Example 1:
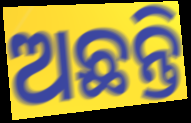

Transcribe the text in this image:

ଅଛନ୍ତି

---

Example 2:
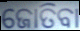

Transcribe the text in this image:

ଜୋତିବା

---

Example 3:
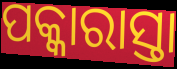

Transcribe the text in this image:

ପକ୍କାରାସ୍ତା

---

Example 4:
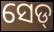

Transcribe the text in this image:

ସେଡ୍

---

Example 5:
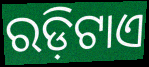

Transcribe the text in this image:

ରଡ଼ିଟାଏ